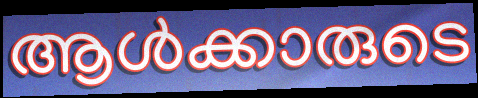
ആൾക്കാരുടെ